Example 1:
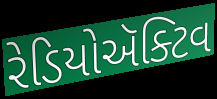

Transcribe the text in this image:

રેડિયોઍક્ટિવ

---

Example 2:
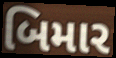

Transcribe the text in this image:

બિમાર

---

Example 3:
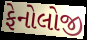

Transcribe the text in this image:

ફેનોલોજી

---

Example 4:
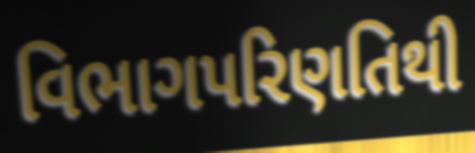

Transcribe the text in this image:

વિભાગપરિણતિથી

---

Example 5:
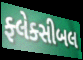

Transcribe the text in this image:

ફ્લેક્સીબલ